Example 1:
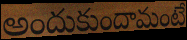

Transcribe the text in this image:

అందుకుందామంటే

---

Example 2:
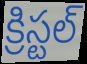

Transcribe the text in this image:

క్రిస్టల్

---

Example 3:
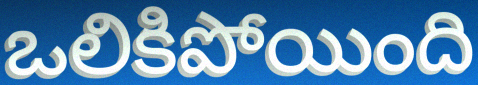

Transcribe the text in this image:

ఒలికిపోయింది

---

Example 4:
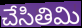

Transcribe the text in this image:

చేసితిమి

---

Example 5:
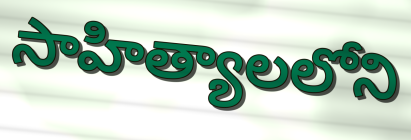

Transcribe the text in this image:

సాహిత్యాలలోని